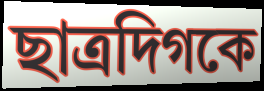
ছাত্রদিগকে